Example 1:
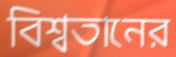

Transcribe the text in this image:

বিশ্বতানের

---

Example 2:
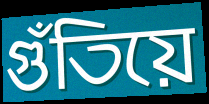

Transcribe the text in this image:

গুঁতিয়ে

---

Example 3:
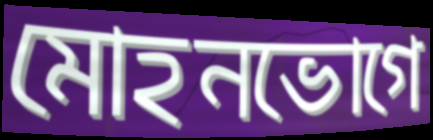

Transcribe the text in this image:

মোহনভোগে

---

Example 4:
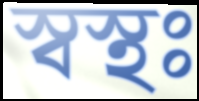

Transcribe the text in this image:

স্বস্থঃ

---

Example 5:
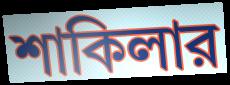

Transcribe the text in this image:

শাকিলার